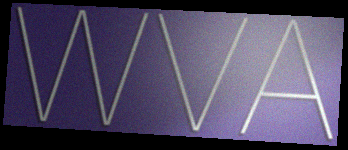
WVA